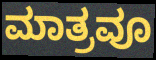
ಮಾತ್ರವೂ